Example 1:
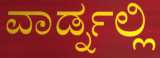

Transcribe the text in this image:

ವಾರ್ಡ್ನಲ್ಲಿ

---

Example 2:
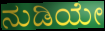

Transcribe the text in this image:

ನುಡಿಯೇ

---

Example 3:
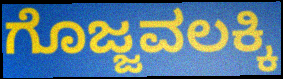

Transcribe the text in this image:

ಗೊಜ್ಜವಲಕ್ಕಿ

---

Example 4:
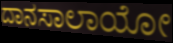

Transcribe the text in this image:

ದಾನಸಾಲಾಯೋ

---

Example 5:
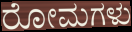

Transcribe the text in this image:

ರೋಮಗಳು